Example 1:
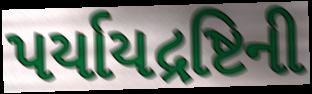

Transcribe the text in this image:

પર્યાયદ્રષ્ટિની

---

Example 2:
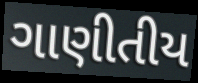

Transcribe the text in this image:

ગાણીતીય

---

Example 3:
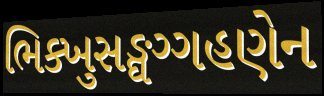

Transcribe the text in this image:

ભિક્ખુસઙ્ઘગ્ગહણેન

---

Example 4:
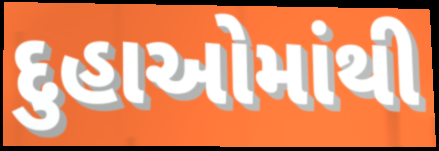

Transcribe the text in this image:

દુહાઓમાંથી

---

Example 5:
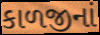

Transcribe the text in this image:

કાળજીનાં